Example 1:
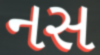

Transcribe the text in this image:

નસ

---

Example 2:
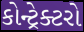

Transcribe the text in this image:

કોન્ટ્રેક્ટરો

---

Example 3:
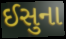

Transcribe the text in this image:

ઈસુના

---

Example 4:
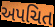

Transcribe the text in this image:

અપચિત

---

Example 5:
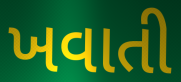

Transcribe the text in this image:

ખવાતી